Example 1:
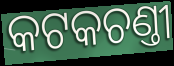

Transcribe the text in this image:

କଟକଚଣ୍ତୀ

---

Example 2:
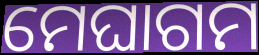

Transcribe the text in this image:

ମେଘାଗମ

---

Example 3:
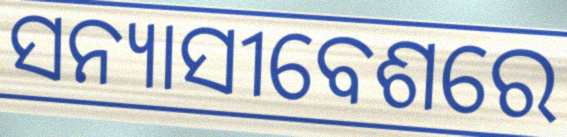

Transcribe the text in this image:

ସନ୍ୟାସୀବେଶରେ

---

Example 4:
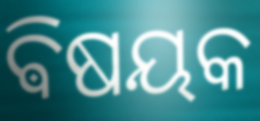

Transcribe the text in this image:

ଵିଷୟକ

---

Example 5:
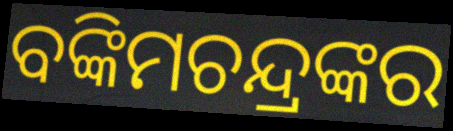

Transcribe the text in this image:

ବଙ୍କିମଚନ୍ଦ୍ରଙ୍କର